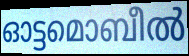
ഓട്ടമൊബീൽ